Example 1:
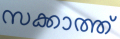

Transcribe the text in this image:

സക്കാത്ത്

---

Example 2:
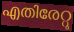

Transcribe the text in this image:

എതിരേറ്റു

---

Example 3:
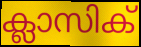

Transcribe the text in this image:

ക്ലാസിക്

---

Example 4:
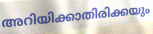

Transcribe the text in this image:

അറിയിക്കാതിരിക്കയും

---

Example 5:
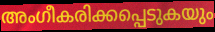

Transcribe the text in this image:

അംഗീകരിക്കപ്പെടുകയും